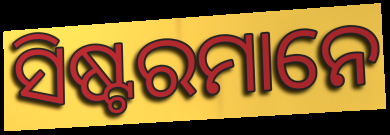
ସିଷ୍ଟରମାନେ